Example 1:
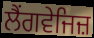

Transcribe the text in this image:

ਲੈਂਗਵੇਜਿਜ਼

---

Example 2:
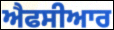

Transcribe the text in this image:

ਐਫਸੀਆਰ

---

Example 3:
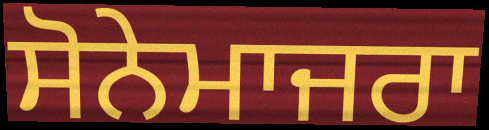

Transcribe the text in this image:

ਸੋਨੇਮਾਜਰਾ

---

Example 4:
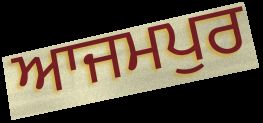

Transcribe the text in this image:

ਆਜਮਪੁਰ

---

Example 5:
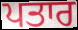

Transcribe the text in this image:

ਪਤਾਰ